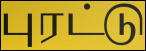
புரட்டு